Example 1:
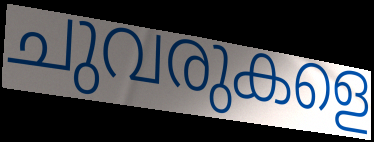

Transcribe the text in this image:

ചുവരുകളെ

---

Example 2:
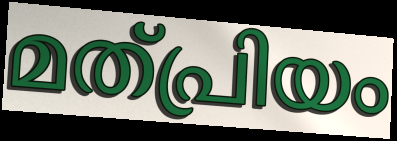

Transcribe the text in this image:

മത്പ്രിയം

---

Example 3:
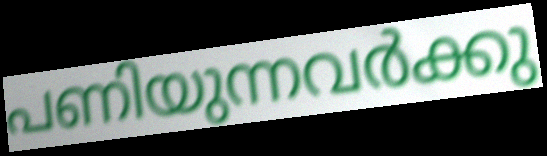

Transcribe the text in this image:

പണിയുന്നവർക്കു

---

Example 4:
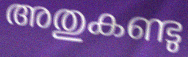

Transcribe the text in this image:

അതുകണ്ടു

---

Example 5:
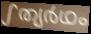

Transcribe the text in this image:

ഽത്യർഥം